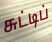
சுட்டிப்